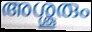
അശ്ശൂരും